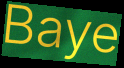
Baye